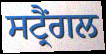
ਸਟ੍ਰੈਂਗਲ